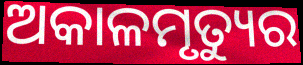
ଅକାଳମୃତ୍ୟୁର